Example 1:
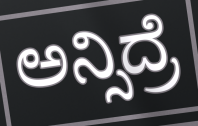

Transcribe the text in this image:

ಅನ್ಸಿದ್ರೆ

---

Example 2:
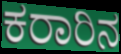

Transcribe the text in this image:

ಕರಾರಿನ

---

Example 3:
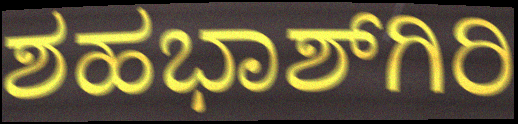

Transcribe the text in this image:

ಶಹಭಾಶ್‌ಗಿರಿ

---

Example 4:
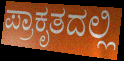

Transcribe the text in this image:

ಪ್ರಾಕೃತದಲ್ಲಿ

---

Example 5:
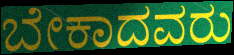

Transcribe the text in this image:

ಬೇಕಾದವರು